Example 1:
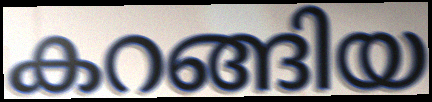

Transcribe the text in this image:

കറങ്ങിയ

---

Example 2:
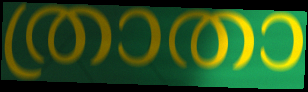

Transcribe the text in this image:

ത്രാതാ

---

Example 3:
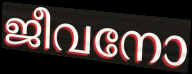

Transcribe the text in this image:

ജീവനോ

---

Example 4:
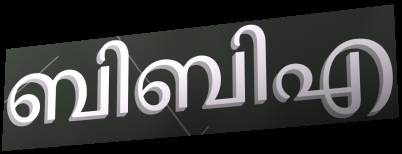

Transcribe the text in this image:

ബിബിഎ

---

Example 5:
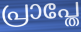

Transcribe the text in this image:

പ്രാപ്തേ